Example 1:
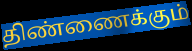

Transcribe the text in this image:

திண்ணைக்கும்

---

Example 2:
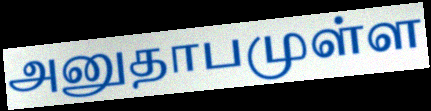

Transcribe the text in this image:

அனுதாபமுள்ள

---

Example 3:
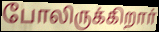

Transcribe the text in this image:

போலிருக்கிறார்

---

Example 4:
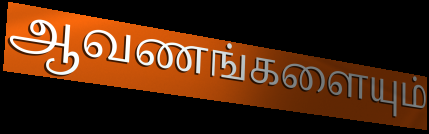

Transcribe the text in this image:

ஆவணங்களையும்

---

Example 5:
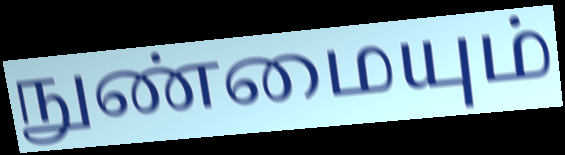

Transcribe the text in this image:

நுண்மையும்